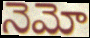
నెమో